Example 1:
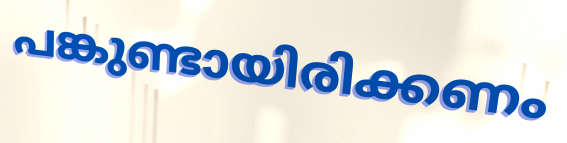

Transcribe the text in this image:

പങ്കുണ്ടായിരിക്കണം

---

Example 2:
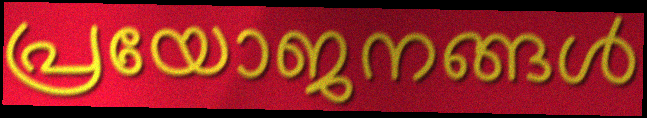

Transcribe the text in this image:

പ്രയോജനങ്ങൾ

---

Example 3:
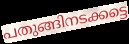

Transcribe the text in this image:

പതുങ്ങിനടക്കട്ടെ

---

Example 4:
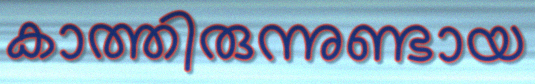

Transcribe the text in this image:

കാത്തിരുന്നുണ്ടായ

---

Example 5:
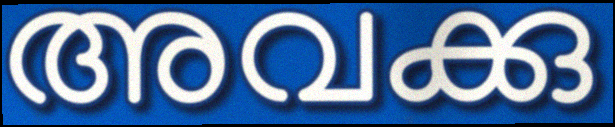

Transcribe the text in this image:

അവക്കു